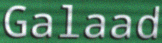
Galaad